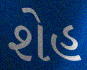
શેહ